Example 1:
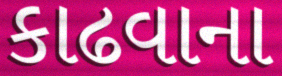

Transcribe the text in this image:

કાઢવાના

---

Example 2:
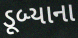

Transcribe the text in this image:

ડૂબ્યાના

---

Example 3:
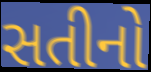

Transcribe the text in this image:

સતીનો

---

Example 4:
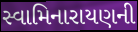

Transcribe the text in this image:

સ્વામિનારાયણની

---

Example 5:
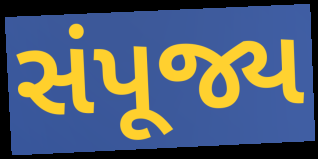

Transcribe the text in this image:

સંપૂજ્ય